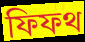
ফিফথ